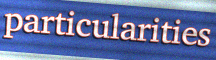
particularities